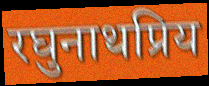
रघुनाथप्रिय